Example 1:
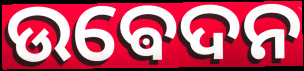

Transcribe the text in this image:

ଉଵେଦନ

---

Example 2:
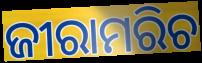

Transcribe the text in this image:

ଜୀରାମରିଚ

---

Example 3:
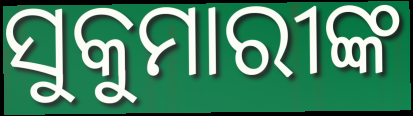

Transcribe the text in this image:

ସୁକୁମାରୀଙ୍କ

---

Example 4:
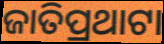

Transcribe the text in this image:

ଜାତିପ୍ରଥାଟା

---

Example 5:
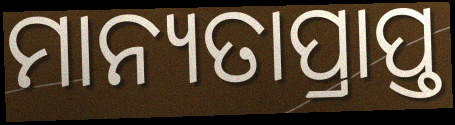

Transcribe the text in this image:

ମାନ୍ୟତାପ୍ରାପ୍ତ